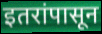
इतरांपासून